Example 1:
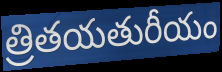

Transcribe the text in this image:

త్రితయతురీయం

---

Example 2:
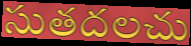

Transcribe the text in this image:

సుతదలచు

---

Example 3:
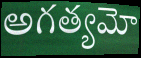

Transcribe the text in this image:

అగత్యమో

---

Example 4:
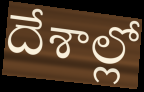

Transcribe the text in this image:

దేశాల్లో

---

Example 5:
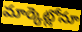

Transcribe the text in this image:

మార్కెట్లోనూ